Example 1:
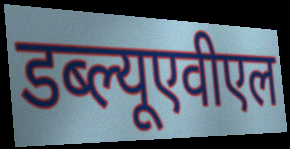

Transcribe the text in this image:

डब्ल्यूएवीएल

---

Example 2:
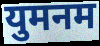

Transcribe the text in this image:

युमनम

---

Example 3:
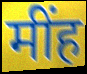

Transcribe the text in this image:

मींह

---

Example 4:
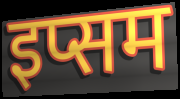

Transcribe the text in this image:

इप्सम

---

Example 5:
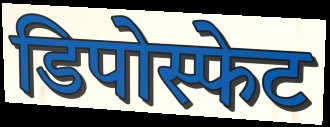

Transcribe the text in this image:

डिपोस्फेट